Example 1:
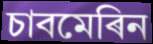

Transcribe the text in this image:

চাবমেৰিন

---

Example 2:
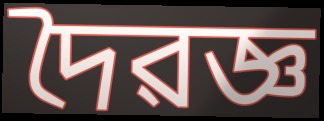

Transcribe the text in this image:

দৈৱজ্ঞ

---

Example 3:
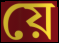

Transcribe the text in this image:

য়ে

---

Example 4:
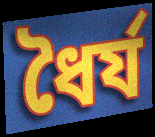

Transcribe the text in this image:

ধৈৰ্য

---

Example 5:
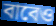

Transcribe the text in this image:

বাবেও